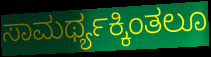
ಸಾಮರ್ಥ್ಯಕ್ಕಿಂತಲೂ